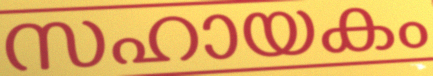
സഹായകം